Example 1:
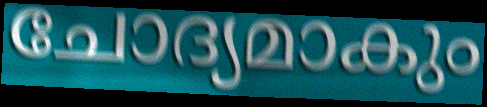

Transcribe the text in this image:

ചോദ്യമാകും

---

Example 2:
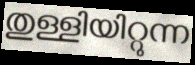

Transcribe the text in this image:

തുള്ളിയിറ്റുന്ന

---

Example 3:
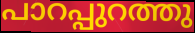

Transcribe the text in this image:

പാറപ്പുറത്തു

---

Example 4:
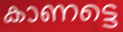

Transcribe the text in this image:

കാണട്ടെ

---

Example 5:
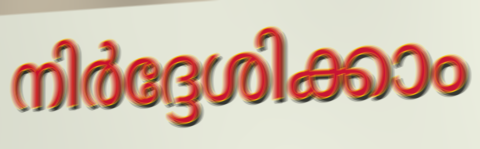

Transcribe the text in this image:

നിർദ്ദേശിക്കാം